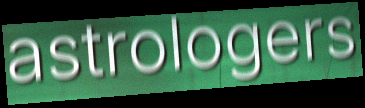
astrologers